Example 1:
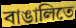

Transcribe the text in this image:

বাঙালিতে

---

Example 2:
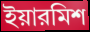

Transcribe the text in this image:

ইয়ারমিশ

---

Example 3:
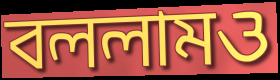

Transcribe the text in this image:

বললামও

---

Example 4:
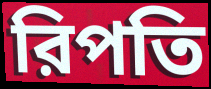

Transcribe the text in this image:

রিপতি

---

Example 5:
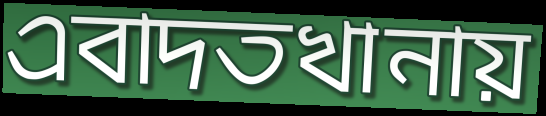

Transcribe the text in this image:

এবাদতখানায়